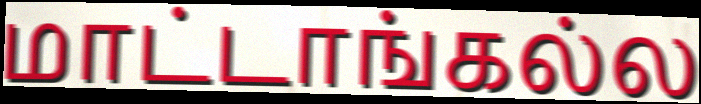
மாட்டாங்கல்ல